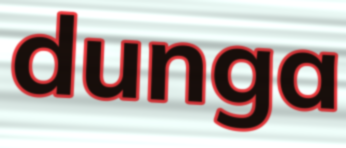
dunga